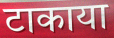
टाकाया